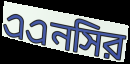
এএনসির